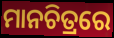
ମାନଚିତ୍ରରେ